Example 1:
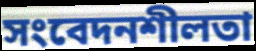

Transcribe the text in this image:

সংবেদনশীলতা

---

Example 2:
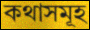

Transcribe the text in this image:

কথাসমূহ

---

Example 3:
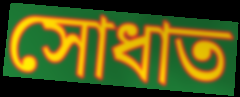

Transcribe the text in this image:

সোধাত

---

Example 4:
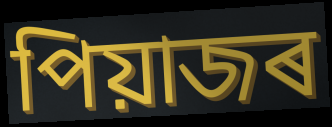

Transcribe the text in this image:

পিয়াজৰ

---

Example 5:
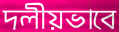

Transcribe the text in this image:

দলীয়ভাবে